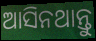
ଆସିନଥାନ୍ତୁ